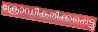
ക്രോഡീകരിക്കപ്പെട്ടു